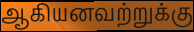
ஆகியனவற்றுக்கு